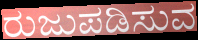
ರುಜುಪಡಿಸುವ